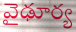
వైఢూర్య